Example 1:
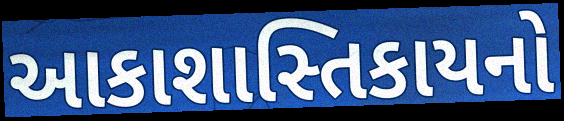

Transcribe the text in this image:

આકાશાસ્તિકાયનો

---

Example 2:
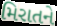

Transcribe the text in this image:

મિરાતને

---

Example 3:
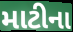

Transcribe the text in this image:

માટીના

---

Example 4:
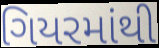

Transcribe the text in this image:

ગિયરમાંથી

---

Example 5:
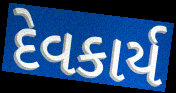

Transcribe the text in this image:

દેવકાર્ય